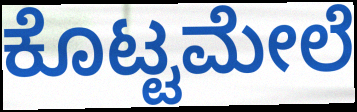
ಕೊಟ್ಟಮೇಲೆ